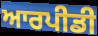
ਆਰਪੀਡੀ